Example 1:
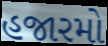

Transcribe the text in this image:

હજારમો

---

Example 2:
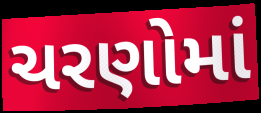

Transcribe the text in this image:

ચરણોમાં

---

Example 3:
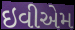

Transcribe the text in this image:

ઇવીએમ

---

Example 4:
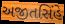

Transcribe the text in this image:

અજીતસિંહે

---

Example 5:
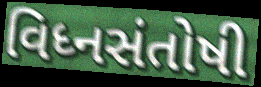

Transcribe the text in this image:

વિધ્નસંતોષી